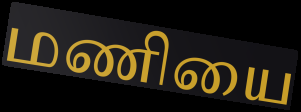
மணியை